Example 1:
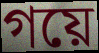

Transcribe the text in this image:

গয়ে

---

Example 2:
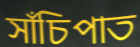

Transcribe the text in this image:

সাঁচিপাত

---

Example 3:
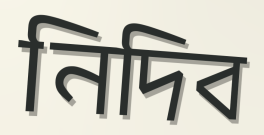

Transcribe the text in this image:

নিদিব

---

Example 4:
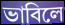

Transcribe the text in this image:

ভাবিলে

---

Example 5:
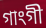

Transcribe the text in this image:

গাংগী